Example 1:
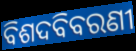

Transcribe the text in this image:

ବିଶଦବିବରଣୀ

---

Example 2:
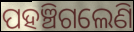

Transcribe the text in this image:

ପହଞ୍ଚିଗଲେଣି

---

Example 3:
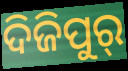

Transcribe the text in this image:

ଦିଜିପୁର୍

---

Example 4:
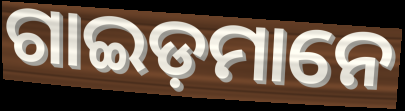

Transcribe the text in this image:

ଗାଇଡ଼ମାନେ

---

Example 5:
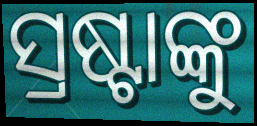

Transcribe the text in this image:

ସ୍ରଷ୍ଟାଙ୍କୁ